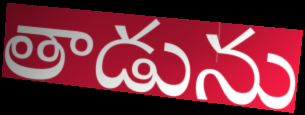
తాడును